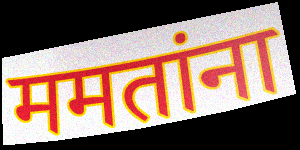
ममतांना